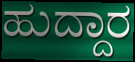
ಹುದ್ದಾರ